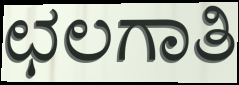
ಛಲಗಾತಿ